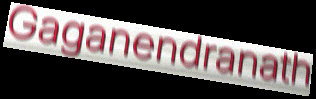
Gaganendranath